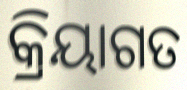
କ୍ରିୟାଗତ